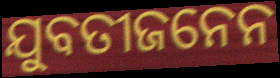
ଯୁବତୀଜନେନ